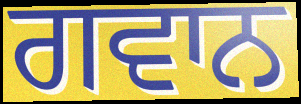
ਗਵਾਨ